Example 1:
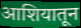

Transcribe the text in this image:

आशियातून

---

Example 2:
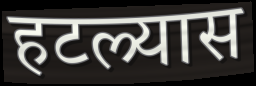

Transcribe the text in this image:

हटल्यास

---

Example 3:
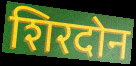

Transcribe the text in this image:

शिरदोन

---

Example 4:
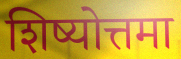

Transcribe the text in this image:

शिष्योत्तमा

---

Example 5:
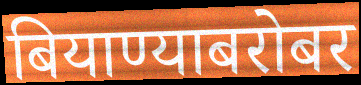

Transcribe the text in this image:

बियाण्याबरोबर